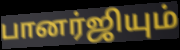
பானர்ஜியும்